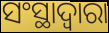
ସଂସ୍ଥାଦ୍ଵାରା